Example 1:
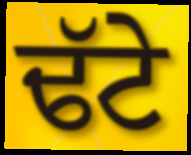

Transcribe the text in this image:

ਢੱਟੇ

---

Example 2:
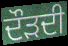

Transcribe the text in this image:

ਦੌੜਦੀ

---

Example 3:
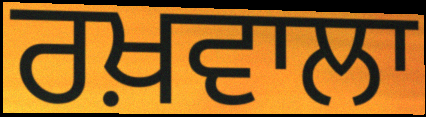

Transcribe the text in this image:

ਰਖ਼ਵਾਲਾ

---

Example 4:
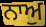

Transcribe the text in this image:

ਨਾਅੁ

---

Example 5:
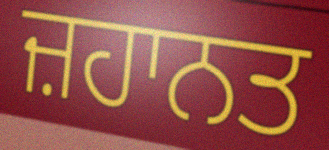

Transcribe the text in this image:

ਜ਼ਹਾਨਤ